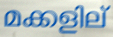
മക്കളില്